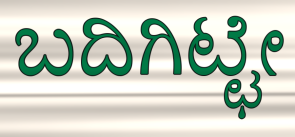
ಬದಿಗಿಟ್ಟೇ